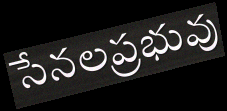
సేనలప్రభువు